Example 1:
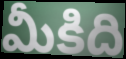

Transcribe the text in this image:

మీకిది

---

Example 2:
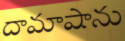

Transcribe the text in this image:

దామాషాను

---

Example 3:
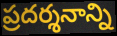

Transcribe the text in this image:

ప్రదర్శనాన్ని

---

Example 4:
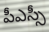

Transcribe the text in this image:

పీఎస్సీ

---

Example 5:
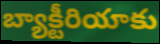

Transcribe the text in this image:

బ్యాక్టీరియాకు